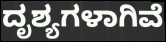
ದೃಶ್ಯಗಳಾಗಿವೆ